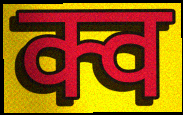
क्व